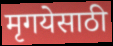
मृगयेसाठी